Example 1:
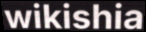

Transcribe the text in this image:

wikishia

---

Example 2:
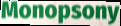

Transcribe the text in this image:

Monopsony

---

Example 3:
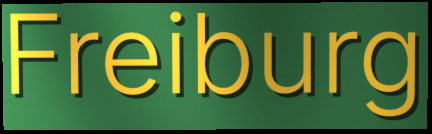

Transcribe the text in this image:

Freiburg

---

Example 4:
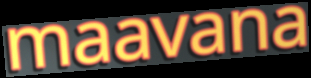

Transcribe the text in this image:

maavana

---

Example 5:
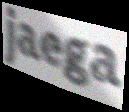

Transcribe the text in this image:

jaega